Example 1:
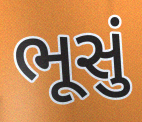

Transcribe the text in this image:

ભૂસું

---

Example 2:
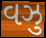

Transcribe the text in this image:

વઝુ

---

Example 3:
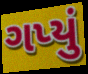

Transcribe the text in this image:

ગપ્યું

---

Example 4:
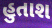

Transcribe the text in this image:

હુતાશ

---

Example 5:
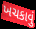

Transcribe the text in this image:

ખચકાવું